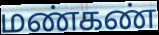
மண்கண்